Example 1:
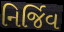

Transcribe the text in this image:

નિર્જિવ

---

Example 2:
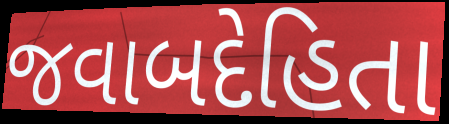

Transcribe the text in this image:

જવાબદેહિતા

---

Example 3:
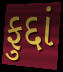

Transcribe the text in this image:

ફુદ્દાં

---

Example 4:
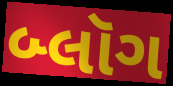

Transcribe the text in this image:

બ્લૉગ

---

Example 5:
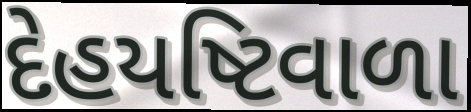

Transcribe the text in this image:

દેહયષ્ટિવાળા